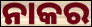
ନାକର